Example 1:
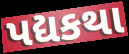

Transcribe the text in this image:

પદ્યકથા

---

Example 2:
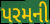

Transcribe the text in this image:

પરમની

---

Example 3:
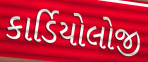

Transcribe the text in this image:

કાર્ડિયોલોજી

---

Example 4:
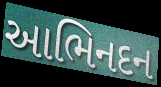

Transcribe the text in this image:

આભિનદન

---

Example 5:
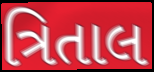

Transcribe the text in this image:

ત્રિતાલ